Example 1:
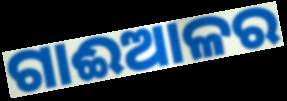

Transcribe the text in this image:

ଗାଈଆଳର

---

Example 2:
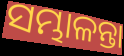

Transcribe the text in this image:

ସମ୍ଭାଳନ୍ତା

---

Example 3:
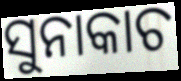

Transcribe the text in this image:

ସୁନାକାଚ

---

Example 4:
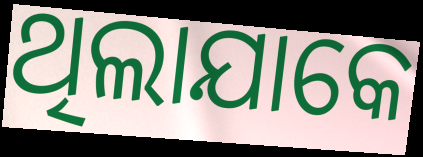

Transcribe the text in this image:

ଥିଲାଯାକେ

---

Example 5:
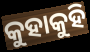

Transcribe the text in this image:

କୁହାକୁହି